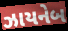
ઝાયનેબ